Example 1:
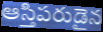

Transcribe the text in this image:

ఆస్తిపరుడైన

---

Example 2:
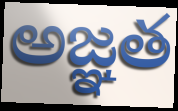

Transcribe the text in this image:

అజ్ఞత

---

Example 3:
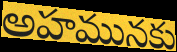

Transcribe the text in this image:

అహమునకు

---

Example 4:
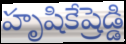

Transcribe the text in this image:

హృషికేష్రెడ్డి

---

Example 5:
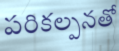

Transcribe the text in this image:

పరికల్పనతో